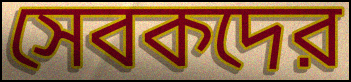
সেবকদের